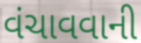
વંચાવવાની